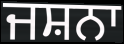
ਜਸ਼ਨਾ